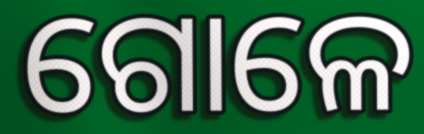
ଗୋଳେ